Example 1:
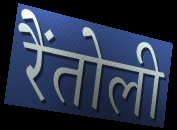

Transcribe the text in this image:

रैंतोली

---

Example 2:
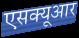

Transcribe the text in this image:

एसक्यूआर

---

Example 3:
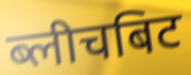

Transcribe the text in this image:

ब्लीचबिट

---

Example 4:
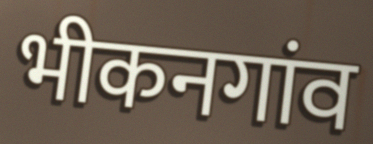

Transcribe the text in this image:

भीकनगांव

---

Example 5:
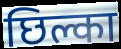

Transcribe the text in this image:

छिल्का